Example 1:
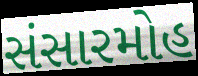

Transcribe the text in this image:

સંસારમોહ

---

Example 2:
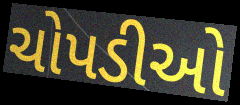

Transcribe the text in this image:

ચોપડીઓ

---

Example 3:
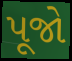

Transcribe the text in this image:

પૂજો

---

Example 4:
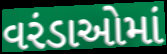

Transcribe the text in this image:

વરંડાઓમાં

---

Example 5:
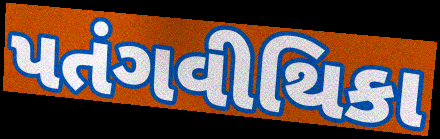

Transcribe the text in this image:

પતંગવીથિકા